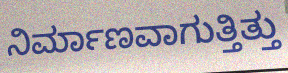
ನಿರ್ಮಾಣವಾಗುತ್ತಿತ್ತು